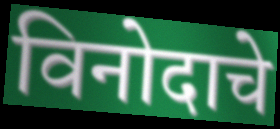
विनोदाचे